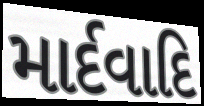
માર્દવાદિ